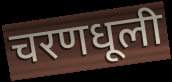
चरणधूली